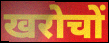
खरोचों